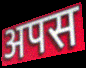
अपस